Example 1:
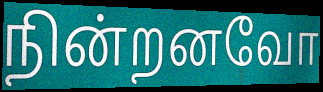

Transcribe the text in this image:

நின்றனவோ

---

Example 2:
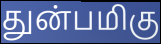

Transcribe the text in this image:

துன்பமிகு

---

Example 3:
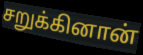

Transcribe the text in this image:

சறுக்கினான்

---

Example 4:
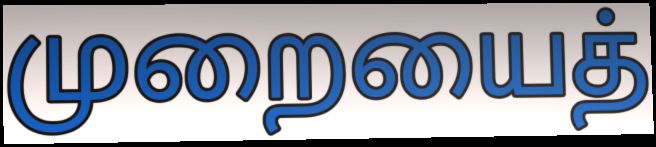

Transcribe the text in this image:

முறையைத்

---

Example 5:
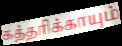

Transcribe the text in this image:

கத்தரிக்காயும்